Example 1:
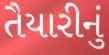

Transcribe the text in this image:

તૈયારીનું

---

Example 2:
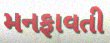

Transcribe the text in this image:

મનફાવતી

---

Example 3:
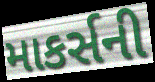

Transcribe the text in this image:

માકર્સની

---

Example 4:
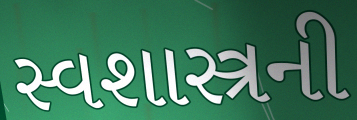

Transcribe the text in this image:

સ્વશાસ્ત્રની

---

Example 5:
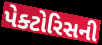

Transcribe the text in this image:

પેક્ટોરિસની